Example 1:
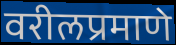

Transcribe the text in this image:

वरीलप्रमाणे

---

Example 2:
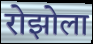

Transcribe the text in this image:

रोझोला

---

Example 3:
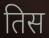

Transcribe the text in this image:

तिस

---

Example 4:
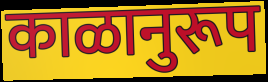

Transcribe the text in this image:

काळानुरूप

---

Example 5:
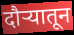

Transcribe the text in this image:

दौऱ्यातून